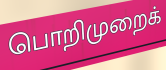
பொறிமுறைக்